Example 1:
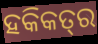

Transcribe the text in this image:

ହକିକତ୍‌ର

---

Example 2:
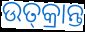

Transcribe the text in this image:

ଉତ୍‌କ୍ରାନ୍ତ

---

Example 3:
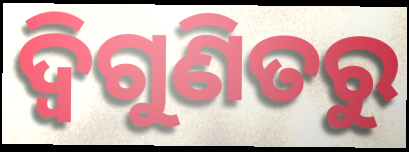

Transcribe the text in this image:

ଦ୍ୱିଗୁଣିତରୁ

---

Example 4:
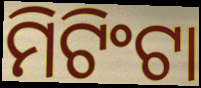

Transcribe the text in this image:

ମିଟିଂଟା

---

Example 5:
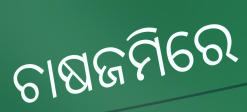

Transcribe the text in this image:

ଚାଷଜମିରେ